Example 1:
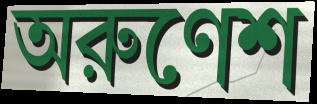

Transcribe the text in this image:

অরুণেশ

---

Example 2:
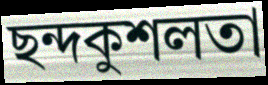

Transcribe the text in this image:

ছন্দকুশলতা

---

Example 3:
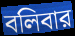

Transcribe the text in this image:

বলিবার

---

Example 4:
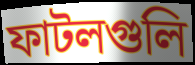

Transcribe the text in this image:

ফাটলগুলি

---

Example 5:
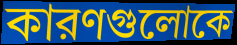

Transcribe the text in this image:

কারণগুলোকে